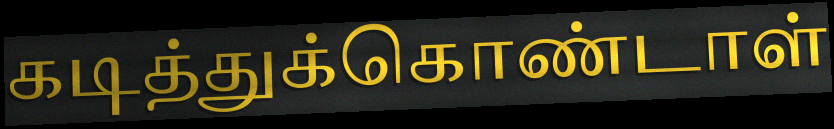
கடித்துக்கொண்டாள்